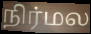
நிர்மல